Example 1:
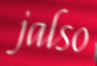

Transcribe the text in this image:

jalso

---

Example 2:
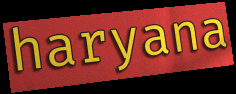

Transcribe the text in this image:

haryana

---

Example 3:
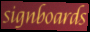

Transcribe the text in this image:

signboards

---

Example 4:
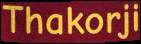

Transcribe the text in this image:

Thakorji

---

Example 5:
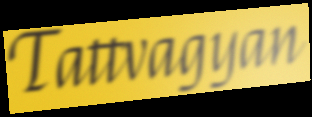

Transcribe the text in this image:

Tattvagyan